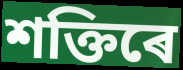
শক্তিৰে